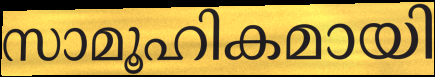
സാമൂഹികമായി